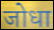
जोधा